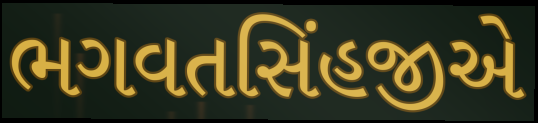
ભગવતસિંહજીએ